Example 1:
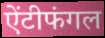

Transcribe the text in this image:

ऐंटीफंगल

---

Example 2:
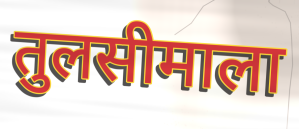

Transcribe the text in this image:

तुलसीमाला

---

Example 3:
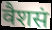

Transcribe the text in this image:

वैशसं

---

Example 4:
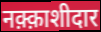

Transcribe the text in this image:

नक़्क़ाशीदार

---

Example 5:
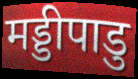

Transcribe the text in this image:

मड्डीपाडु